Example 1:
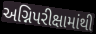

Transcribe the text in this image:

અગ્નિપરીક્ષામાંથી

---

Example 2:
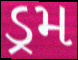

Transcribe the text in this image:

ડ્રમ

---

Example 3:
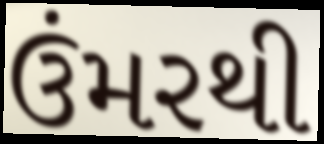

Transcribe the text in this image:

ઉંમરથી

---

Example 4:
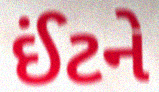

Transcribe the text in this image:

ઈંટને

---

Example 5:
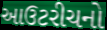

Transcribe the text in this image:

આઉટરીચનો